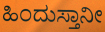
ಹಿಂದುಸ್ತಾನೀ